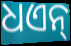
ଧଏନ୍